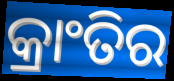
କ୍ରାଂତିର